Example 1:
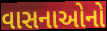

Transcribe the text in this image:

વાસનાઓનો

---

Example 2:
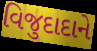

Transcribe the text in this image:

વિજુદાદાને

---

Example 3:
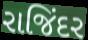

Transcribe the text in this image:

રાજિંદર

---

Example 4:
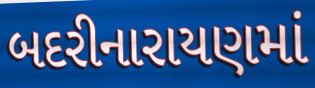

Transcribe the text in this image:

બદરીનારાયણમાં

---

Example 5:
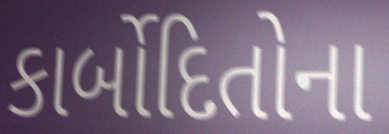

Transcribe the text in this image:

કાર્બોદિતોના